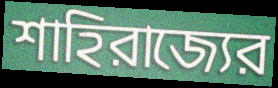
শাহিরাজ্যের